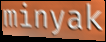
minyak